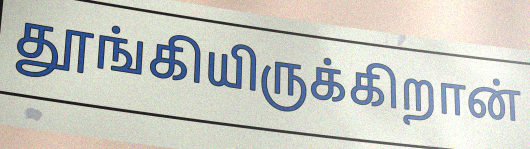
தூங்கியிருக்கிறான்